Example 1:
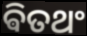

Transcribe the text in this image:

ଵିତଥଂ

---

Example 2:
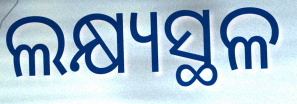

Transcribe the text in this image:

ଲକ୍ଷ୍ୟସ୍ଥଳ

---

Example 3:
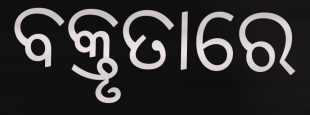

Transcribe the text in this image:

ବକ୍ତୃତାରେ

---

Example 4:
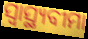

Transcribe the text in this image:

ସ୍ଵାସ୍ଥ୍ୟବୀମା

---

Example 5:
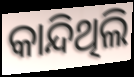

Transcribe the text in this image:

କାନ୍ଦିଥିଲି